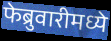
फेब्रुवारीमध्ये